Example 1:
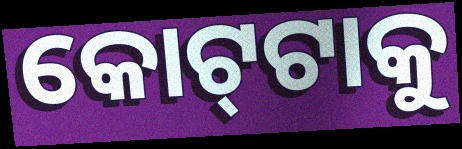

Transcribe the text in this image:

କୋଟ୍‌ଟାକୁ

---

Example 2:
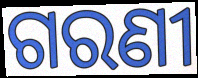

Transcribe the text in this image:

ଗରଣୀ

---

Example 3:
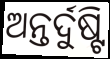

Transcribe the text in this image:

ଅନ୍ତର୍ଦୁଷ୍ଟି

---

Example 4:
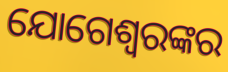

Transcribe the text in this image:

ଯୋଗେଶ୍ଵରଙ୍କର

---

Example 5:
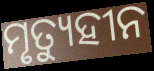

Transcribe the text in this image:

ମୃତ୍ୟୁହୀନ